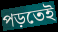
পড়তেই